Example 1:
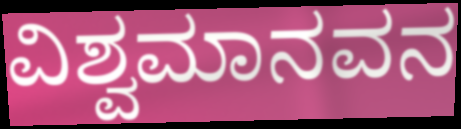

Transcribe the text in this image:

ವಿಶ್ವಮಾನವನ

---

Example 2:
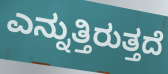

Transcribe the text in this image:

ಎನ್ನುತ್ತಿರುತ್ತದೆ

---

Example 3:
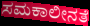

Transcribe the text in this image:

ಸಮಕಾಲೀನತೆ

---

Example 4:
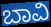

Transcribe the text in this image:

ಬಾವಿ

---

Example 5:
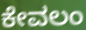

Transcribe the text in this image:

ಕೇವಲಂ